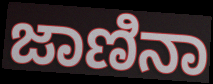
ಜಾಣಿನಾ